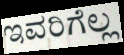
ಇವರಿಗೆಲ್ಲ